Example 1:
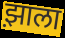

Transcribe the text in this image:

झ़ाला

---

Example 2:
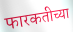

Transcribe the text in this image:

फारकतीच्या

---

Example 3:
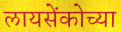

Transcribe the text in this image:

लायसेंकोच्या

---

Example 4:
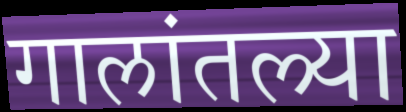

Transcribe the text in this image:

गालांतल्या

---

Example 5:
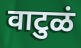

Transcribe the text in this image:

वाटुळं